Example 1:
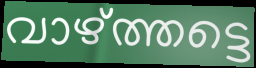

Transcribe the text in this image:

വാഴ്ത്തട്ടെ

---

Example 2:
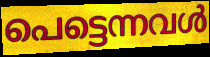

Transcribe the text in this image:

പെട്ടെന്നവൾ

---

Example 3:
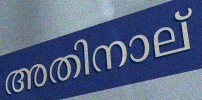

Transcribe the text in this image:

അതിനാല്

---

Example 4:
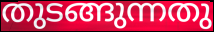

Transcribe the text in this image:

തുടങ്ങുന്നതു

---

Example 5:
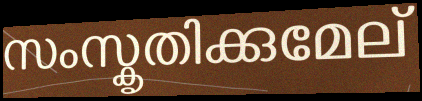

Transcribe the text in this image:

സംസ്കൃതിക്കുമേല്